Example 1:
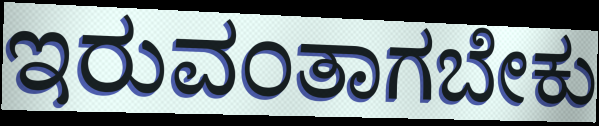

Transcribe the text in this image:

ಇರುವಂತಾಗಬೇಕು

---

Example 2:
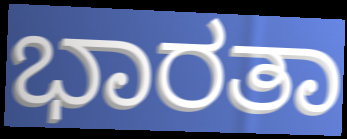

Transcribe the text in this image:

ಭಾರತಾ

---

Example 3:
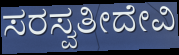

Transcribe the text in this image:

ಸರಸ್ವತೀದೇವಿ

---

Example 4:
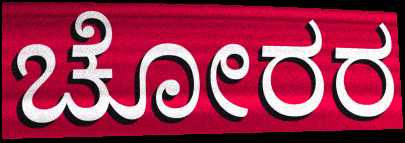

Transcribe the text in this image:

ಚೋರರ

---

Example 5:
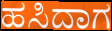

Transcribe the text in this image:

ಹಸಿದಾಗ